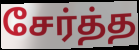
சேர்த்த